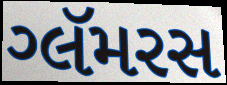
ગ્લૅમરસ